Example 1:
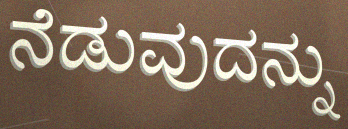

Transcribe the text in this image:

ನೆಡುವುದನ್ನು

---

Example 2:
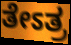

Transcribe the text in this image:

ತೇಽತ್ರ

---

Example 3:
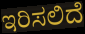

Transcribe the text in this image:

ಇರಿಸಲಿದೆ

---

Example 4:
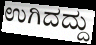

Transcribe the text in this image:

ಉಗಿದದ್ದು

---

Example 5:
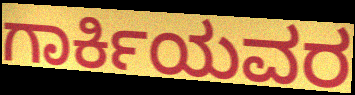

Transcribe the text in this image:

ಗಾರ್ಕಿಯವರ